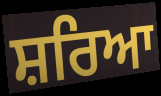
ਸ਼ਰਿਆ